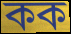
কক